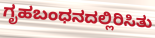
ಗೃಹಬಂಧನದಲ್ಲಿರಿಸಿತು